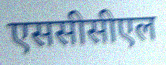
एससीसीएल